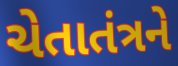
ચેતાતંત્રને